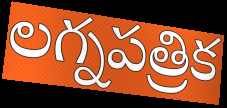
లగ్నపత్రిక